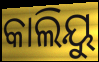
କାଲିୟୁ